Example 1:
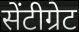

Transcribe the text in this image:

सेंटीग्रेट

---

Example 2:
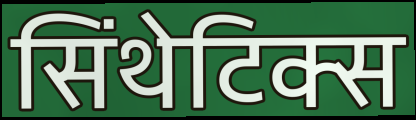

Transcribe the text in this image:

सिंथेटिक्स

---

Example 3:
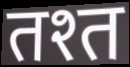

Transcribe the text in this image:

तश्त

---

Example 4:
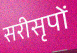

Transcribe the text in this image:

सरीसृपों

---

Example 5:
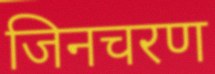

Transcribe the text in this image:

जिनचरण